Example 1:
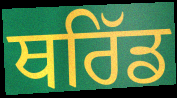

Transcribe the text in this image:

ਥਰਿੱਡ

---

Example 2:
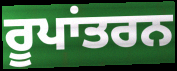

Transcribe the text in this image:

ਰੂਪਾਂਤਰਨ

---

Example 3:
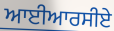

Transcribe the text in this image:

ਆਈਆਰਸੀਏ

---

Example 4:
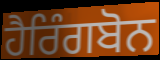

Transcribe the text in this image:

ਹੈਰਿੰਗਬੋਨ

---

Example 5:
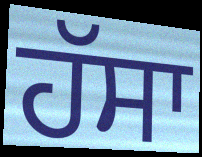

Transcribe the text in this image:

ਹੱਸਾ